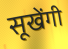
सूखेंगी